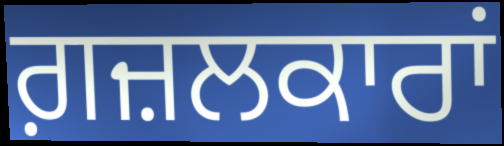
ਗ਼ਜ਼ਲਕਾਰਾਂ